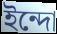
ইন্দো